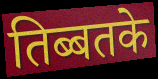
तिब्बतके